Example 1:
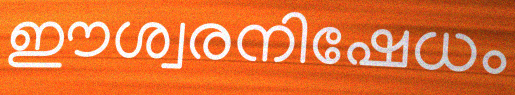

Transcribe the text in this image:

ഈശ്വരനിഷേധം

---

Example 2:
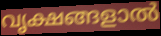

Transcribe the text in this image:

വൃക്ഷങ്ങളാൽ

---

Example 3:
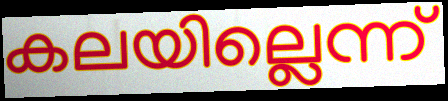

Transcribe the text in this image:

കലയില്ലെന്ന്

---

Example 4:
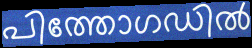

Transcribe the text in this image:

പിത്തോഗഡിൽ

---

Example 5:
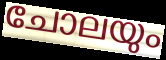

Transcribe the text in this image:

ചോലയും